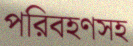
পরিবহণসহ